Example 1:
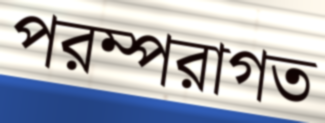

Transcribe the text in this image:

পরম্পরাগত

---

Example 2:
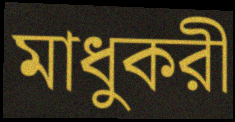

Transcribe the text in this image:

মাধুকরী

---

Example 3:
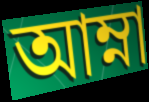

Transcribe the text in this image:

আম্না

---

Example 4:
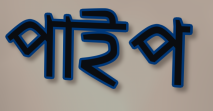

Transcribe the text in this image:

পাইপ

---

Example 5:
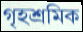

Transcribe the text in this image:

গৃহশ্রমিক